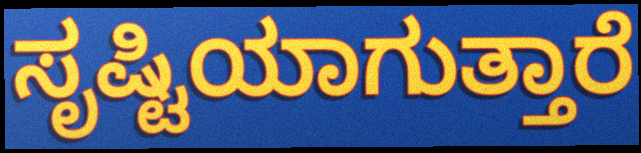
ಸೃಷ್ಟಿಯಾಗುತ್ತಾರೆ